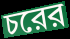
চরের